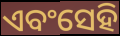
ଏବଂସେହି